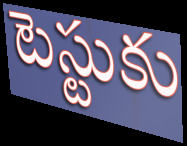
టెస్టుకు